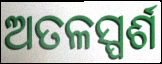
ଅତଳସ୍ପର୍ଶ